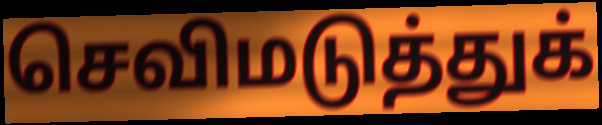
செவிமடுத்துக்